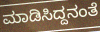
ಮಾಡಿಸಿದ್ದನಂತೆ